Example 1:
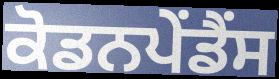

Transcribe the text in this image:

ਕੋਡਨਪੇਂਡੈਂਸ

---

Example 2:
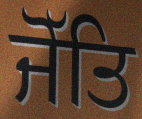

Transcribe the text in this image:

ਜੋੱਤਿ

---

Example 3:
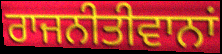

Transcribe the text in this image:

ਰਾਜਨੀਤੀਵਾਨਾਂ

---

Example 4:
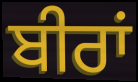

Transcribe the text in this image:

ਬੀਰਾਂ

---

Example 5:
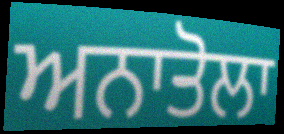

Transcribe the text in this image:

ਅਨਾਤੋਲਾ